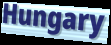
Hungary